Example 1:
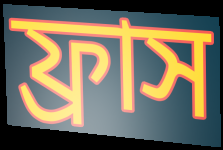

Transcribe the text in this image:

ফ্রাস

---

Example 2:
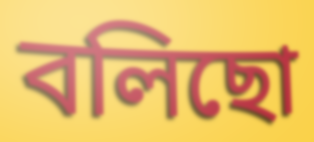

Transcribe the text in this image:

বলিছো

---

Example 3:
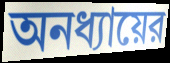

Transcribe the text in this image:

অনধ্যায়ের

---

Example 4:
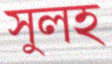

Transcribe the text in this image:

সুলহ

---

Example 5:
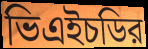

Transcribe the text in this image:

ভিএইচডির